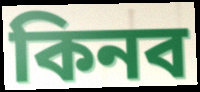
কিনব